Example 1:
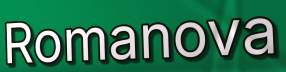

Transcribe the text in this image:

Romanova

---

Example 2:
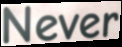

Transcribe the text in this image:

Never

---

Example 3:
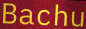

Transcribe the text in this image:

Bachu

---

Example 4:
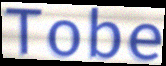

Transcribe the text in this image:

Tobe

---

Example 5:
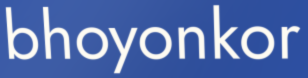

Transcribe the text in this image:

bhoyonkor